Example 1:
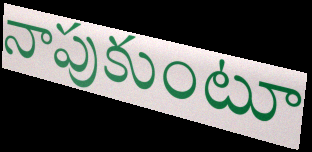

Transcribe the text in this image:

నాపుకుంటూ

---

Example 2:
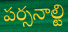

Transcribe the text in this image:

పర్సనాల్టి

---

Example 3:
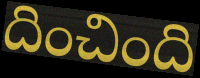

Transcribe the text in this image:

దించింది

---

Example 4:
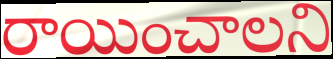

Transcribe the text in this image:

రాయించాలని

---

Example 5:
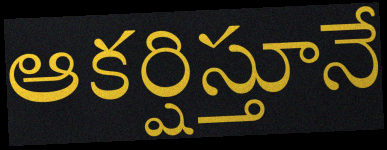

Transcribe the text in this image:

ఆకర్షిస్తూనే